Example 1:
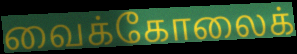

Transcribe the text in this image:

வைக்கோலைக்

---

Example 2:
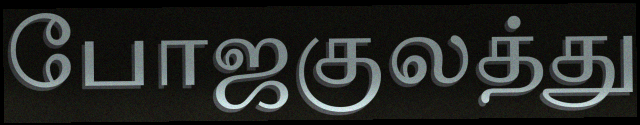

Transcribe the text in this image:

போஜகுலத்து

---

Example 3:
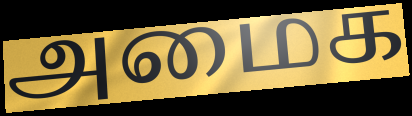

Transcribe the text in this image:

அமைக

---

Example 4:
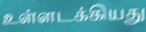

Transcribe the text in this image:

உள்ளடக்கியது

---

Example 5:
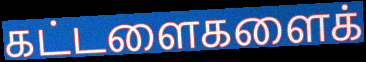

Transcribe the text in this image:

கட்டளைகளைக்